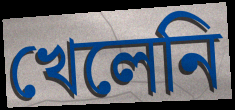
খেলেনি